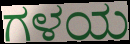
ಗಳಯ